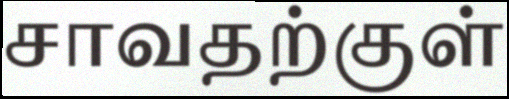
சாவதற்குள்